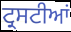
ਟ੍ਰਸਟੀਆਂ